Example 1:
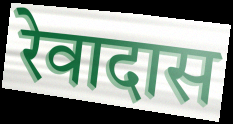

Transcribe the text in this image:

रेवादास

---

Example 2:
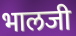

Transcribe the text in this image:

भालजी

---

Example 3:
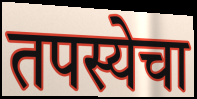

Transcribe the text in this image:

तपस्येचा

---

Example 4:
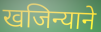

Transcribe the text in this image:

खजिन्याने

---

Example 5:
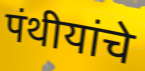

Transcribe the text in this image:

पंथीयांचे